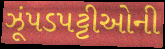
ઝૂંપડપટ્ટીઓની